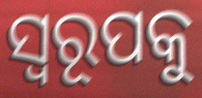
ସ୍ବରୂପକୁ